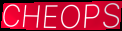
CHEOPS